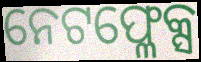
ନେଟଫ୍ଳେକ୍ସ